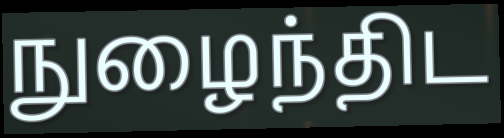
நுழைந்திட